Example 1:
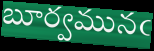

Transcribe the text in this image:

బూర్వమునఁ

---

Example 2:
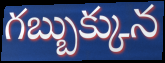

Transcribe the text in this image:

గబ్బుక్కున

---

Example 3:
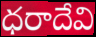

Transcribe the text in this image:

ధరాదేవి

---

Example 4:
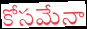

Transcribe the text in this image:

కోసమేనా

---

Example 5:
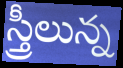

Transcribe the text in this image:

స్త్రీలున్న